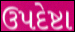
ઉપદેષ્ટા